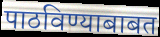
पाठविण्याबाबत